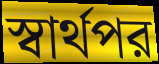
স্বার্থপর